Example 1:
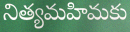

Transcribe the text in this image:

నిత్యమహిమకు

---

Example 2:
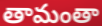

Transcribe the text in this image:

తామంతా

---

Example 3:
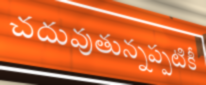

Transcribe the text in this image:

చదువుతున్నప్పటికీ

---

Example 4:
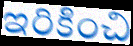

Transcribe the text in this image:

ఇరికించి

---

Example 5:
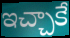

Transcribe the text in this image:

ఇచ్చాకే